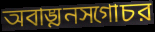
অবাঙ্মনসগোচর